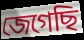
জেগেছি